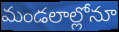
మండలాల్లోనూ